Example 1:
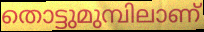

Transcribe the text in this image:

തൊട്ടുമുമ്പിലാണ്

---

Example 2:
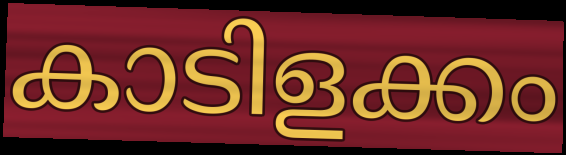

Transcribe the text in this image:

കാടിളക്കം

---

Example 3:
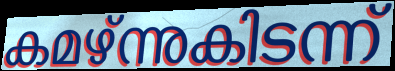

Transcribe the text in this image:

കമഴ്ന്നുകിടന്ന്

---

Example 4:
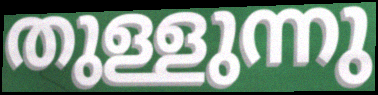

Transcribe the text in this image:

തുള്ളുന്നു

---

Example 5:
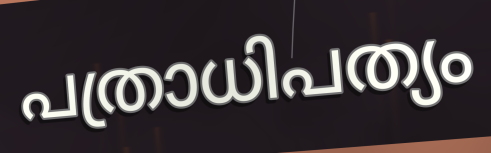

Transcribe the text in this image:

പത്രാധിപത്യം